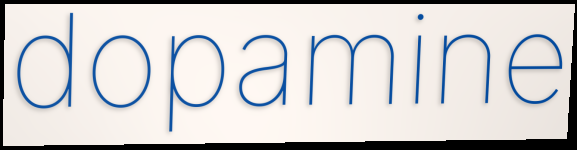
dopamine